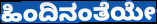
ಹಿಂದಿನಂತೆಯೇ